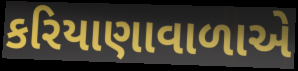
કરિયાણાવાળાએ